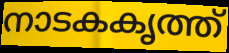
നാടകകൃത്ത്